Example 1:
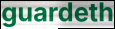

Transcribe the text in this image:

guardeth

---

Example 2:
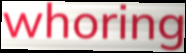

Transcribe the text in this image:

whoring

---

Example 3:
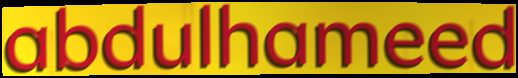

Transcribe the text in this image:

abdulhameed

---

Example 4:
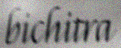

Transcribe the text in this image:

bichitra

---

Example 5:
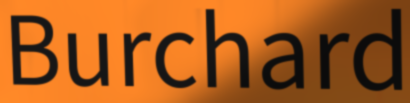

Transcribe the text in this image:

Burchard